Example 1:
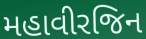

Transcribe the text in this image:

મહાવીરજિન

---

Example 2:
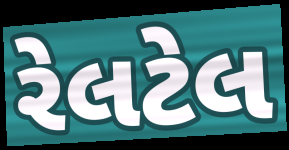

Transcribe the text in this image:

રેલટેલ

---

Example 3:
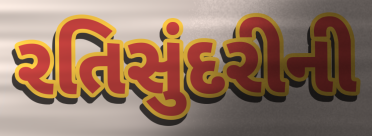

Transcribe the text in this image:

રતિસુંદરીની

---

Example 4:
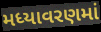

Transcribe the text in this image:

મધ્યાવરણમાં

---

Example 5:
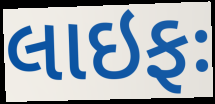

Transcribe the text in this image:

લાઇફઃ